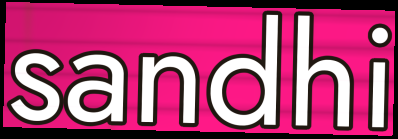
sandhi